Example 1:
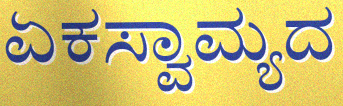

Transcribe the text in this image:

ಏಕಸ್ವಾಮ್ಯದ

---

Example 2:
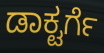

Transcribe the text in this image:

ಡಾಕ್ಟರ್ಗೆ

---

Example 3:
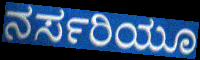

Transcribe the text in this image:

ನರ್ಸರಿಯೂ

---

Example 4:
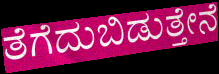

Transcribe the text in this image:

ತೆಗೆದುಬಿಡುತ್ತೇನೆ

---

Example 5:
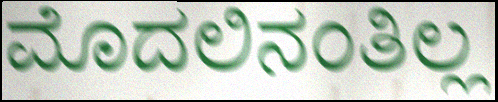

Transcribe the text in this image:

ಮೊದಲಿನಂತಿಲ್ಲ